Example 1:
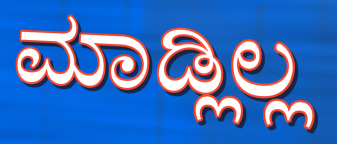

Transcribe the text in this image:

ಮಾಡ್ಲಿಲ್ಲ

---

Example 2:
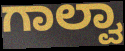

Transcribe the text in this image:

ಗಾಲ್ವಾ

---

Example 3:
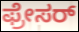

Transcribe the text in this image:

ಫ್ರೇಸರ್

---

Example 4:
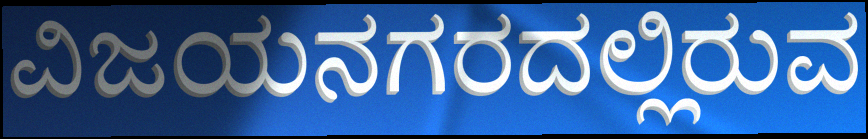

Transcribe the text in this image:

ವಿಜಯನಗರದಲ್ಲಿರುವ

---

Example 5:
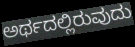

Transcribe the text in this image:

ಅರ್ಥದಲ್ಲಿರುವುದು